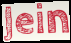
Jein